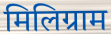
मिलिग्राम